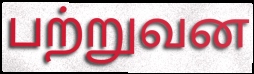
பற்றுவன